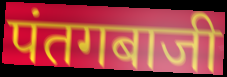
पंतगबाजी